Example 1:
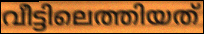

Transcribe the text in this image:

വീട്ടിലെത്തിയത്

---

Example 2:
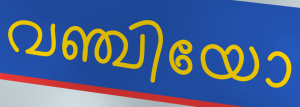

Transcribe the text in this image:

വഞ്ചിയോ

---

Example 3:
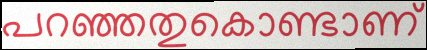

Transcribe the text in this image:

പറഞ്ഞതുകൊണ്ടാണ്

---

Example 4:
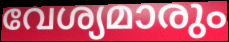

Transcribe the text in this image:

വേശ്യമാരും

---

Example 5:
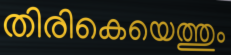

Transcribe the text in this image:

തിരികെയെത്തും